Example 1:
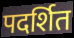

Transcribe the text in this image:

पदर्शित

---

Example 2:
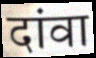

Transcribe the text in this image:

दांवा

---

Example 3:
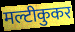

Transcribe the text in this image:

मल्टीकुकर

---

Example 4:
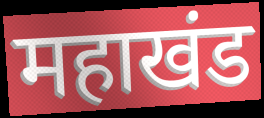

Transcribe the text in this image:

महाखंड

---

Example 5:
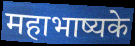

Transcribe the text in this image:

महाभाष्यके